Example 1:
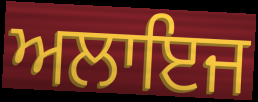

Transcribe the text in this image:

ਅਲਾਇਜ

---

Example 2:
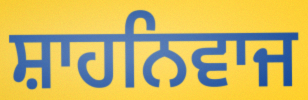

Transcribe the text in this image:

ਸ਼ਾਹਨਿਵਾਜ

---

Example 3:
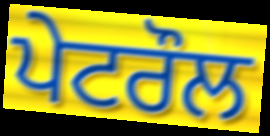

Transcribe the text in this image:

ਪੇਟਰੌਲ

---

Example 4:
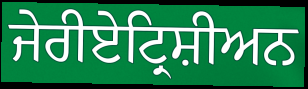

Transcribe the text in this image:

ਜੇਰੀਏਟ੍ਰਿਸ਼ੀਅਨ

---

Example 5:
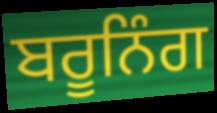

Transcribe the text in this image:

ਬਰੂਨਿੰਗ